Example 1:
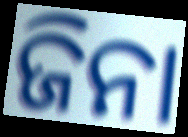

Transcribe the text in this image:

ଜିନା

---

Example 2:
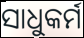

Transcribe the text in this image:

ସାଧୁକର୍ମ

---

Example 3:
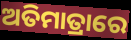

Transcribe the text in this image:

ଅତିମାତ୍ରାରେ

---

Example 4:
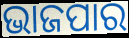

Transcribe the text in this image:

ଭାଜପାର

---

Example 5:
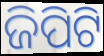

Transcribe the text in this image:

ଜିପିଟି